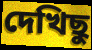
দেখিছু